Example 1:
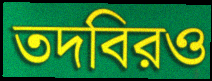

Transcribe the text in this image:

তদবিরও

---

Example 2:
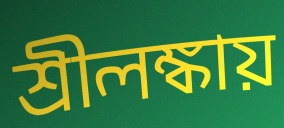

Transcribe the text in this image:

শ্রীলঙ্কায়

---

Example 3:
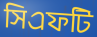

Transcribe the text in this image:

সিএফটি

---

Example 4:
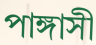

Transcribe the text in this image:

পাঙ্গাসী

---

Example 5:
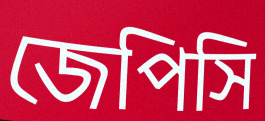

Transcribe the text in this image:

জেপিসি